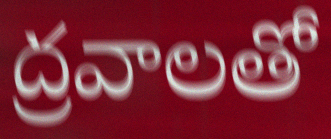
ద్రవాలతో